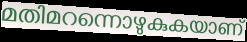
മതിമറന്നൊഴുകുകയാണ്